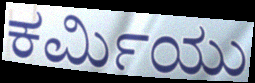
ಕರ್ಮಿಯು